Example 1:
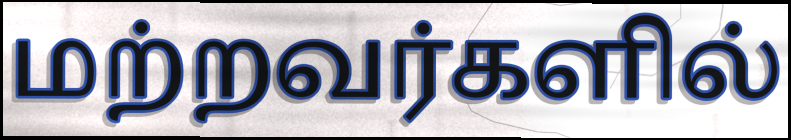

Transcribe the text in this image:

மற்றவர்களில்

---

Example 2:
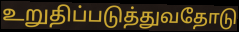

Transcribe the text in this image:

உறுதிப்படுத்துவதோடு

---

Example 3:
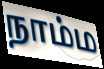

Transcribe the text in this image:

நாம்ம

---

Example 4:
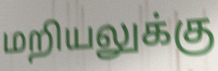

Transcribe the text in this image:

மறியலுக்கு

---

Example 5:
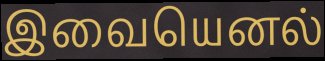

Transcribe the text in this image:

இவையெனல்